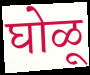
घोळू